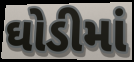
ઘોડીમાં